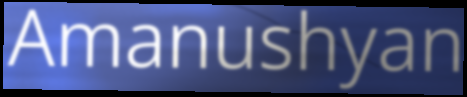
Amanushyan